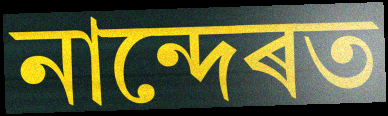
নান্দেৰত